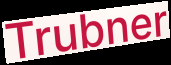
Trubner